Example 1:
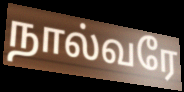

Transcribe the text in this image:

நால்வரே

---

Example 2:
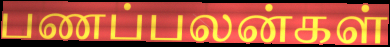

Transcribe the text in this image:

பணப்பலன்கள்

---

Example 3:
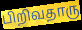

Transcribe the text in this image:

பிறிவதாரு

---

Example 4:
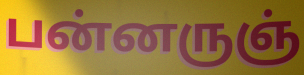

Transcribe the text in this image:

பன்னருஞ்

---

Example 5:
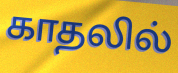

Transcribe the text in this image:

காதலில்